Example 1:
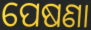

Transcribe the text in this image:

ପେଷଣା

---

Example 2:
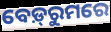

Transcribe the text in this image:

ବେଡ଼୍‌ରୁମରେ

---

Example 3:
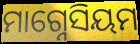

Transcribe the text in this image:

ମାଗ୍ନେସିୟମ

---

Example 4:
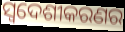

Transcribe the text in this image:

ସ୍ୱଦେଶୀକରଣର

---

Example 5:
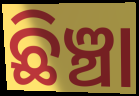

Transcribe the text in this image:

ଛିଞ୍ଚା